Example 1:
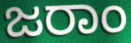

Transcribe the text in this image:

ಜರಾಂ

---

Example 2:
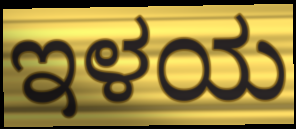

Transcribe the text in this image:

ಇಳಯ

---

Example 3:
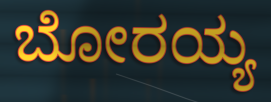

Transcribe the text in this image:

ಬೋರಯ್ಯ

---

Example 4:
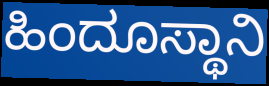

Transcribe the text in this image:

ಹಿಂದೂಸ್ಥಾನಿ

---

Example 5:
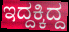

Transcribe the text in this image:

ಇದ್ದಕ್ಕಿದ್ದ